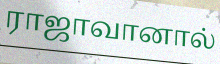
ராஜாவானால்